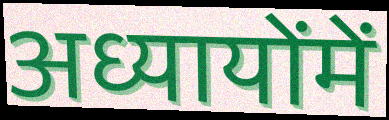
अध्यायोंमें